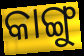
କାଙ୍ଗୁ